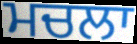
ਮਚਲਾ